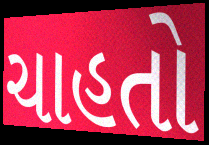
ચાહતો